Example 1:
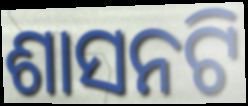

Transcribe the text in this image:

ଶାସନଟି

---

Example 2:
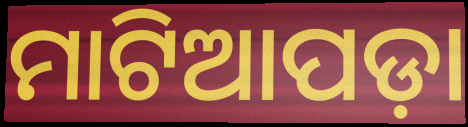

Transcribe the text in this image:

ମାଟିଆପଡ଼ା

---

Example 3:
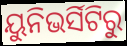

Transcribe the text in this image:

ୟୁନିଭର୍ସିଟିରୁ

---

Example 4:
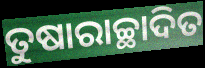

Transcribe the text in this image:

ତୁଷାରାଚ୍ଛାଦିତ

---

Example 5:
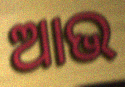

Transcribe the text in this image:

ଆଭ